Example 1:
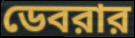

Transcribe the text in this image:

ডেবরার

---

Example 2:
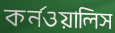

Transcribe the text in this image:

কর্নওয়ালিস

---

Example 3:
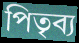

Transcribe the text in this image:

পিতৃব্য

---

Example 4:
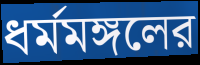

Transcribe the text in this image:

ধর্মমঙ্গলের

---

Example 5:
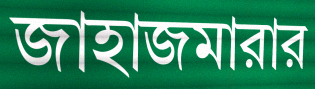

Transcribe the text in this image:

জাহাজমারার